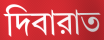
দিবারাত